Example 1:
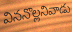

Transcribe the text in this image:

విననొల్లనివాడు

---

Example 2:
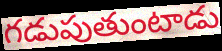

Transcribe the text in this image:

గడుపుతుంటాడు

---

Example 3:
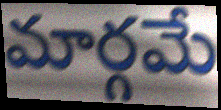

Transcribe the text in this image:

మార్గమే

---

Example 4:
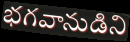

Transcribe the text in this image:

భగవానుడిని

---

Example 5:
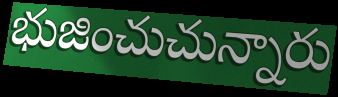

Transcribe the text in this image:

భుజించుచున్నారు